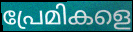
പ്രേമികളെ